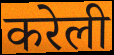
करेली